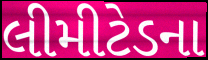
લીમીટેડના